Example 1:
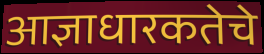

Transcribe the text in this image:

आज्ञाधारकतेचे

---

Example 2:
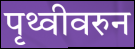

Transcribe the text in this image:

पृथ्वीवरुन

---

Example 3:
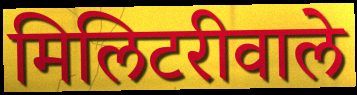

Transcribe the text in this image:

मिलिटरीवाले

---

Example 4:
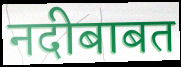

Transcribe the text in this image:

नदीबाबत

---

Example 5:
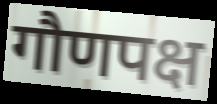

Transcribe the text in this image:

गौणपक्ष